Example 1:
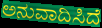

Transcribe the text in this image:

ಅನುವಾದಿಸಿದೆ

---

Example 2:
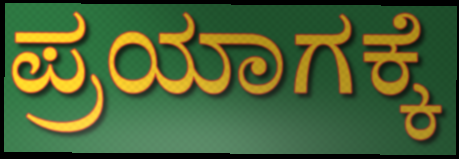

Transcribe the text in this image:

ಪ್ರಯಾಗಕ್ಕೆ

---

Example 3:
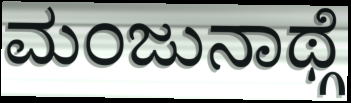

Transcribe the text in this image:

ಮಂಜುನಾಥ್ಗೆ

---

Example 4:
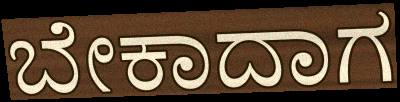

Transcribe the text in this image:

ಬೇಕಾದಾಗ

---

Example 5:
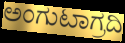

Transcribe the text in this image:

ಅಂಗುಟಾಗ್ರದಿ